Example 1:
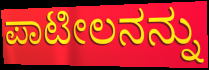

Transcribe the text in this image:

ಪಾಟೀಲನನ್ನು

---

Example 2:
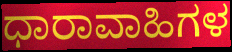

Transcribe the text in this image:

ಧಾರಾವಾಹಿಗಳ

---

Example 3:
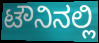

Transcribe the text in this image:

ಟೌನಿನಲ್ಲಿ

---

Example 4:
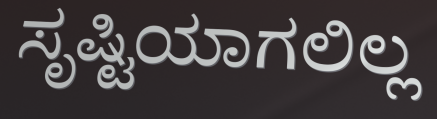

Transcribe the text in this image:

ಸೃಷ್ಟಿಯಾಗಲಿಲ್ಲ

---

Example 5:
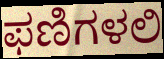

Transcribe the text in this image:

ಫಣಿಗಳಲಿ